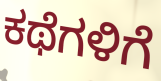
ಕಥೆಗಳಿಗೆ